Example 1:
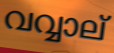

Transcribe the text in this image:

വവ്വാല്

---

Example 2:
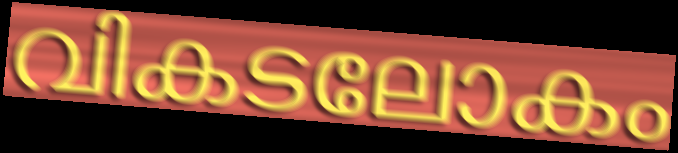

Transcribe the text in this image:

വികടലോകം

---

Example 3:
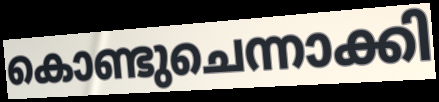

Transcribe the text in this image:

കൊണ്ടുചെന്നാക്കി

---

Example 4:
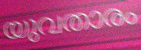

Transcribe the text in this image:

യുവതാരം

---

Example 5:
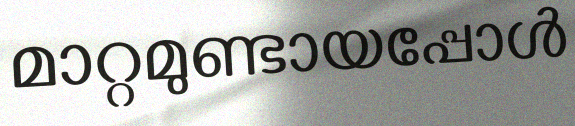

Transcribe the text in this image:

മാറ്റമുണ്ടായപ്പോൾ